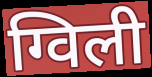
ग्विली